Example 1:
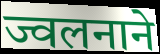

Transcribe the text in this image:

ज्वलनाने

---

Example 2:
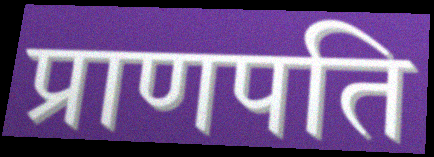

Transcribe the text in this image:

प्राणपति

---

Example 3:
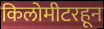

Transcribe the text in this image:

किलोमीटरहून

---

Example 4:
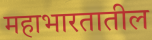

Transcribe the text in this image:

महाभारतातील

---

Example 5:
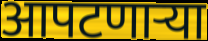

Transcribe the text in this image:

आपटणाऱ्या